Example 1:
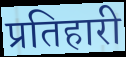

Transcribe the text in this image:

प्रतिहारी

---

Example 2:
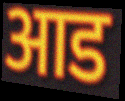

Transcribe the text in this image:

आड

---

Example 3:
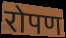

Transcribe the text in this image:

रोपण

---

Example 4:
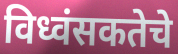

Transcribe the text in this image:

विध्वंसकतेचे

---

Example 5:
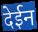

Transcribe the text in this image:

देईन